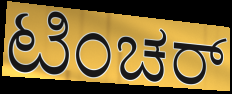
ಟಿಂಚರ್